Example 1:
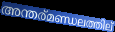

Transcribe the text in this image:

അന്തര്മണ്ഡലത്തില്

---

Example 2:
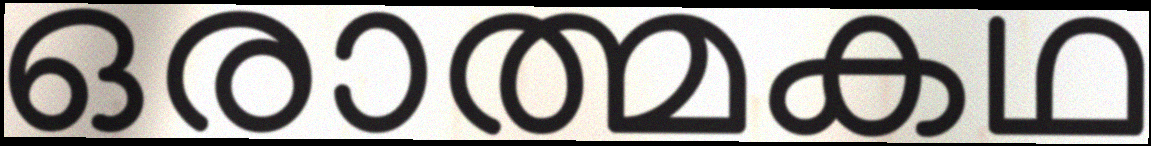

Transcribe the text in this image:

ഒരാത്മകഥ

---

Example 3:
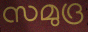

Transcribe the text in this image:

സമുദ്ര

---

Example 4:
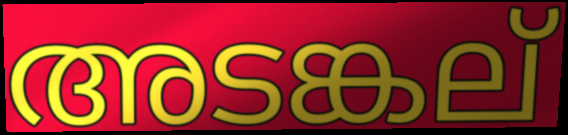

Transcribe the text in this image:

അടങ്കല്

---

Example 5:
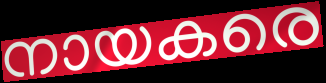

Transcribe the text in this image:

നായകരെ